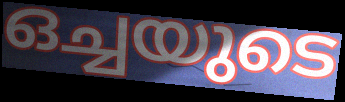
ഒച്ചയുടെ